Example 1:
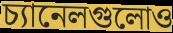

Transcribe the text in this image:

চ্যানেলগুলোও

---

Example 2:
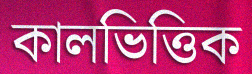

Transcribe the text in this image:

কালভিত্তিক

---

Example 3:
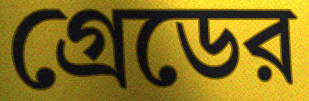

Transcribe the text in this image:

গ্রেডের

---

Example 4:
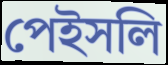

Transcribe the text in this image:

পেইসলি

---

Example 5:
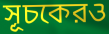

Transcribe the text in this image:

সূচকেরও